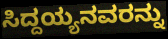
ಸಿದ್ದಯ್ಯನವರನ್ನು